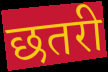
छतरी